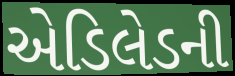
એડિલેડની